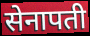
सेनापती